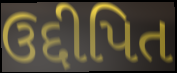
ઉદ્દીપિત